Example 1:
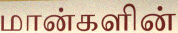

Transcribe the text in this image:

மான்களின்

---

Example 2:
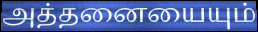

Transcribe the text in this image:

அத்தனையையும்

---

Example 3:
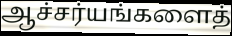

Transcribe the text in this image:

ஆச்சர்யங்களைத்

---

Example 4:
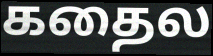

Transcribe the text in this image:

கதைல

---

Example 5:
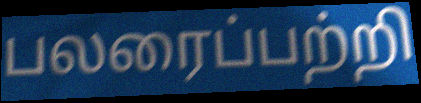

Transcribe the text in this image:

பலரைப்பற்றி